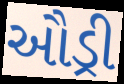
ઔડ્રી